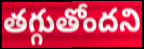
తగ్గుతోందని